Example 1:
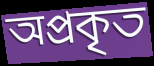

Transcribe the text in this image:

অপ্ৰকৃত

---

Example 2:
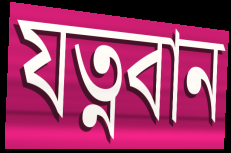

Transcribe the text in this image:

যত্নবান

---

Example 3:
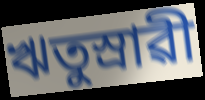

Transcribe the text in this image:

ঋতুস্ৰাৱী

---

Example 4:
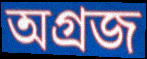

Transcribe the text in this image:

অগ্ৰজ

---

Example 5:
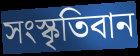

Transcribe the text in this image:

সংস্কৃতিবান